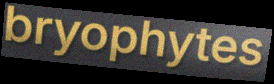
bryophytes